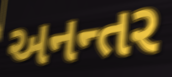
અનન્તર